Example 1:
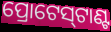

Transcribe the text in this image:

ପ୍ରୋଟେସ୍‌ଟାଣ୍ଟ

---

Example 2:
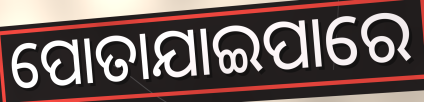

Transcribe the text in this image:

ପୋତାଯାଇପାରେ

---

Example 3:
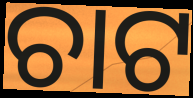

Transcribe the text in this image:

ଚାଟ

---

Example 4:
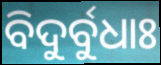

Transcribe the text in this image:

ବିଦୁର୍ବୁଧାଃ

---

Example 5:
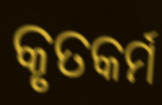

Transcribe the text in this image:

କୃତକର୍ମ